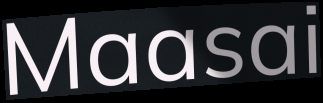
Maasai